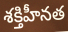
శక్తిహీనత